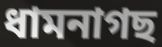
ধামনাগছ